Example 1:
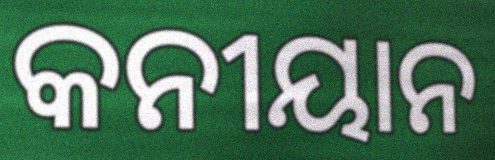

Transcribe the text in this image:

କନୀୟାନ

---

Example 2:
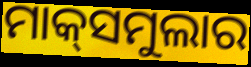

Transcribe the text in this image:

ମାକ୍‌ସମୁଲାର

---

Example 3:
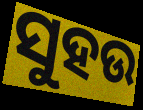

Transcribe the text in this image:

ସୁହଉ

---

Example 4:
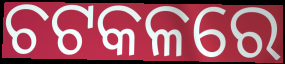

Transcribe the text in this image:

ଚଟକଳରେ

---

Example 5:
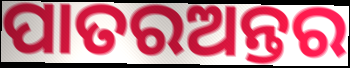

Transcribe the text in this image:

ପାତରଅନ୍ତର